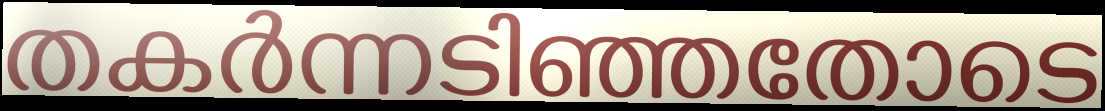
തകർന്നടിഞ്ഞതോടെ